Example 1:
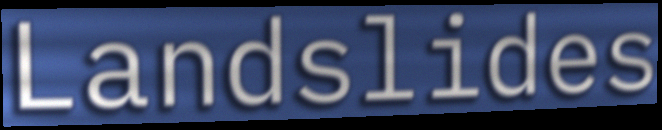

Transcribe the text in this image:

Landslides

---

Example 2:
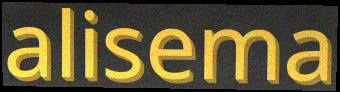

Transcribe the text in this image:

alisema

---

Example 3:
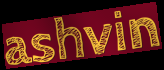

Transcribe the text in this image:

ashvin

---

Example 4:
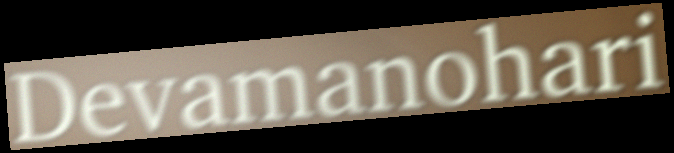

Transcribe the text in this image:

Devamanohari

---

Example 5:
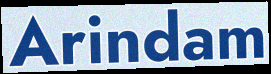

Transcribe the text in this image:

Arindam